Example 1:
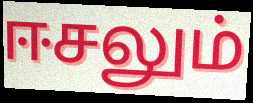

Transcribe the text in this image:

ஈசலும்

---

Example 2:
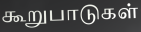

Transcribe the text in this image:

கூறுபாடுகள்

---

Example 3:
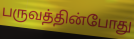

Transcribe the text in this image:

பருவத்தின்போது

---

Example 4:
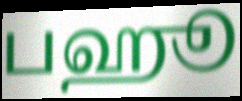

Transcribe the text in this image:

பஹூ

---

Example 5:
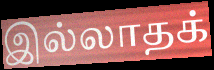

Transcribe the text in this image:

இல்லாதக்